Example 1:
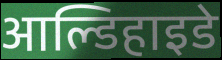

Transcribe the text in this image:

आल्डिहाइडे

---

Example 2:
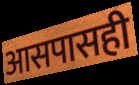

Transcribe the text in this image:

आसपासही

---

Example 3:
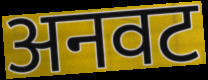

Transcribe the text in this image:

अनवट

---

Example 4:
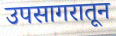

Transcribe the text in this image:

उपसागरातून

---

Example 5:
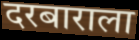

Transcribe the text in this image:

दरबाराला